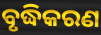
ବୃଦ୍ଧିକରଣ